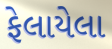
ફેલાયેલા